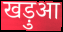
खड़ुआ